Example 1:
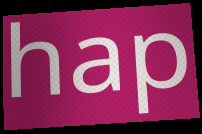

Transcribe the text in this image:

hap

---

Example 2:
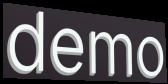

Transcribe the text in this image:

demo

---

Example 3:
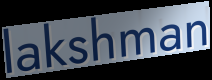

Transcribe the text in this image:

lakshman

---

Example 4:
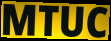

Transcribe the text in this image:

MTUC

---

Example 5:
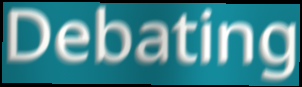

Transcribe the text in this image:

Debating